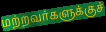
மற்றவர்களுக்குச்